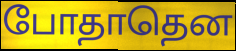
போதாதென